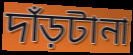
দাঁড়টানা